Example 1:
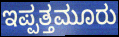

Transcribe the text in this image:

ಇಪ್ಪತ್ತಮೂರು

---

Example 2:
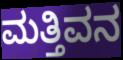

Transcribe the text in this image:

ಮತ್ತಿವನ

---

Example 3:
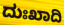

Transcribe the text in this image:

ದುಃಖಾದಿ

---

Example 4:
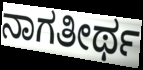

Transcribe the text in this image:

ನಾಗತೀರ್ಥ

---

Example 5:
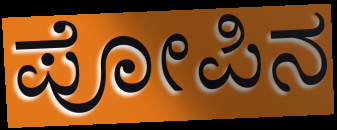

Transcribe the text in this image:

ಪೋಪಿನ